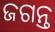
ଜଗନ୍ତ